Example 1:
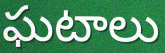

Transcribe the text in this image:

ఘటాలు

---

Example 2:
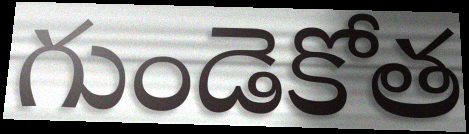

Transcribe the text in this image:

గుండెకోత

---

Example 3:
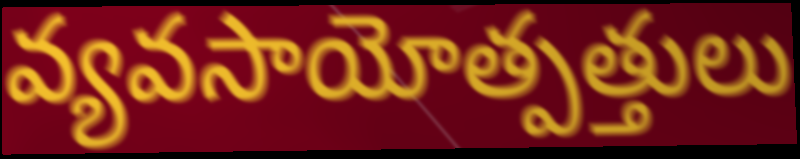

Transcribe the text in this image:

వ్యవసాయోత్పత్తులు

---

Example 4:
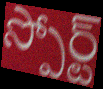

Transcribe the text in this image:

స్పోర్ట్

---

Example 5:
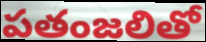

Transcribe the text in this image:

పతంజలితో